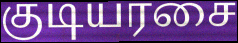
குடியரசை